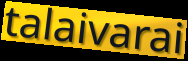
talaivarai